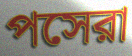
পসেরা